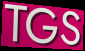
TGS